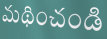
మథించండి